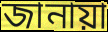
জানায়া